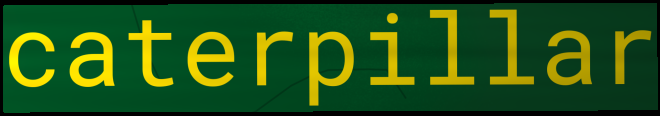
caterpillar